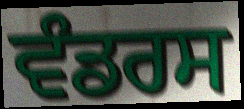
ਵੰਡਰਸ